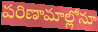
పరిణామాల్లోనూ